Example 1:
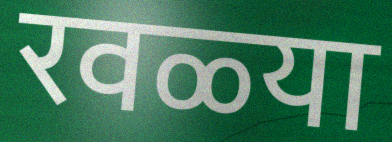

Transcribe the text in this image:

रवळ्या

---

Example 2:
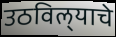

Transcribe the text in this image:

उठविल्याचे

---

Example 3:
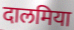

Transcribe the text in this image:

दालमिया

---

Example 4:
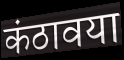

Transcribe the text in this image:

कंठावया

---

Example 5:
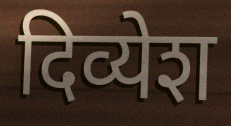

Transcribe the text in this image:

दिव्येश